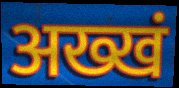
अख्खं